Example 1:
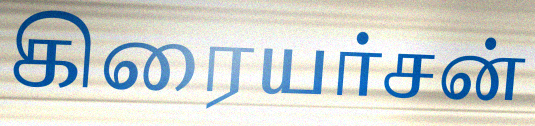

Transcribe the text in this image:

கிரையர்சன்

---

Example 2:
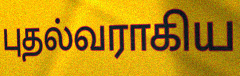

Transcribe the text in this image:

புதல்வராகிய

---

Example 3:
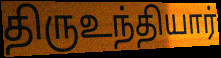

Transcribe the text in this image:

திருஉந்தியார்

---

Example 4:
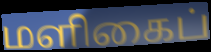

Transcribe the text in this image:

மளிகைப்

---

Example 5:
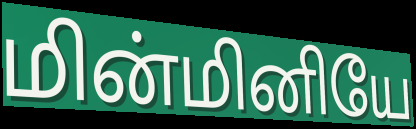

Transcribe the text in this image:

மின்மினியே